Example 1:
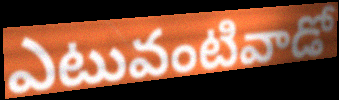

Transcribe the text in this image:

ఎటువంటివాడో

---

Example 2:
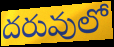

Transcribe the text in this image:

దరువులో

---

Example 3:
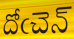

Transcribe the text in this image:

దోఁచెన్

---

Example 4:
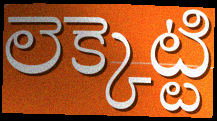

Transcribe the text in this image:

లెక్కెట్టి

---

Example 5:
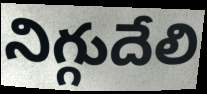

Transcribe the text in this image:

నిగ్గుదేలి